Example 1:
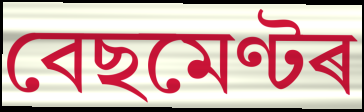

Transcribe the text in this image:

বেছমেণ্টৰ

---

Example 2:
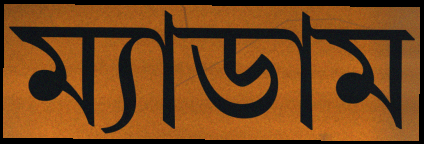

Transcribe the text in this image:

ম্যাডাম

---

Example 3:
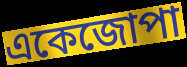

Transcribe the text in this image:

একেজোপা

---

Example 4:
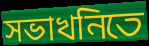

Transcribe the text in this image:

সভাখনিতে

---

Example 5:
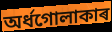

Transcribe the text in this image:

অৰ্ধগোলাকাৰ